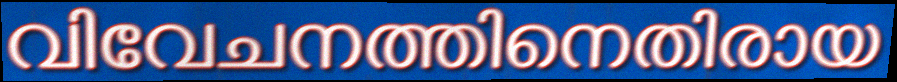
വിവേചനത്തിനെതിരായ